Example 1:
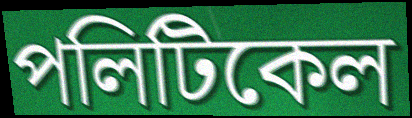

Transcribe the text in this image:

পলিটিকেল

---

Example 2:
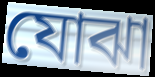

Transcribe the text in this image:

যোঝা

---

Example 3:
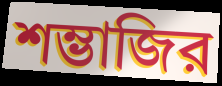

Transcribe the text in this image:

শম্ভাজির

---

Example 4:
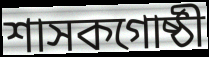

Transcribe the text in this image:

শাসকগোষ্ঠী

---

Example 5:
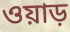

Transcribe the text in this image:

ওয়াড়